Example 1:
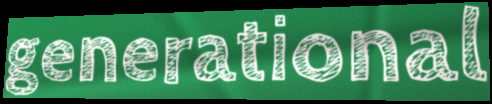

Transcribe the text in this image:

generational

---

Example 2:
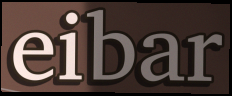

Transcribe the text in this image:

eibar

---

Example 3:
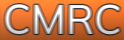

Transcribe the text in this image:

CMRC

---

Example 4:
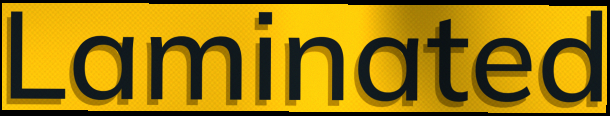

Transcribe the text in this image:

Laminated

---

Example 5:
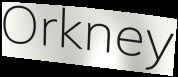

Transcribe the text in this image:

Orkney